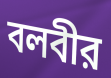
বলবীর